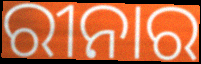
ରୀନାର